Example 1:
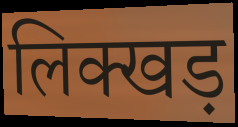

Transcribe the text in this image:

लिक्खड़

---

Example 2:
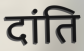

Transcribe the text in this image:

दांति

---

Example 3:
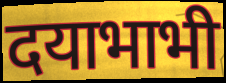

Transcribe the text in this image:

दयाभाभी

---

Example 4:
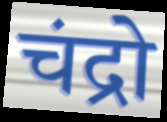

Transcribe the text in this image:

चंद्रो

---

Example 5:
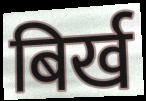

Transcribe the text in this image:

बिर्ख